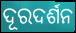
ଦୂରଦର୍ଶନ